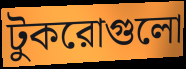
টুকরোগুলো